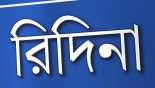
রিদিনা